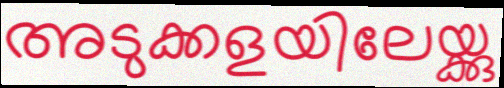
അടുക്കളയിലേയ്ക്കു